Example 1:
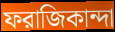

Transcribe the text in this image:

ফরাজিকান্দা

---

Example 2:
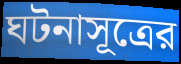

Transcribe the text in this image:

ঘটনাসূত্রের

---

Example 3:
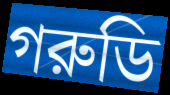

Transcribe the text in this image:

গরুডি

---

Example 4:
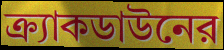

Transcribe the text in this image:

ক্র্যাকডাউনের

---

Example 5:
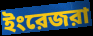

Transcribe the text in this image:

ইংরেজরা